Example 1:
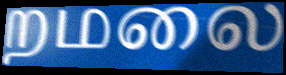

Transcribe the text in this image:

றமலை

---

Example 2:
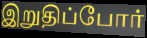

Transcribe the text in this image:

இறுதிப்போர்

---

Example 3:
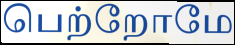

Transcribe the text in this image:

பெற்றோமே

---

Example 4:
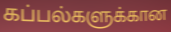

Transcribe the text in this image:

கப்பல்களுக்கான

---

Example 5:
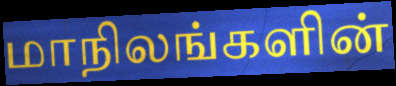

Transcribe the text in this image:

மாநிலங்களின்